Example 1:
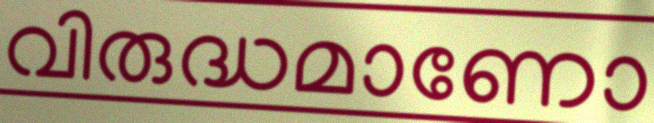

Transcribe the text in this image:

വിരുദ്ധമാണോ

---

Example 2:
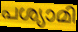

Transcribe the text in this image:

പശ്യാമി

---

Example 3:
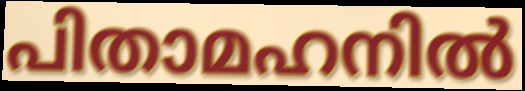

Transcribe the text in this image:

പിതാമഹനിൽ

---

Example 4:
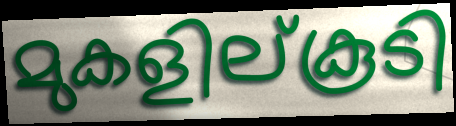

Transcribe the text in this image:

മുകളില്കൂടി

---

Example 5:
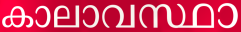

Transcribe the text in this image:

കാലാവസ്ഥാ